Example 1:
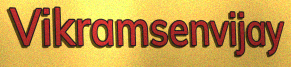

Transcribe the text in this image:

Vikramsenvijay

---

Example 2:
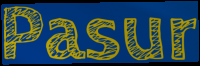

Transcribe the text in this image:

Pasur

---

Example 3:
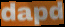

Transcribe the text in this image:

dapd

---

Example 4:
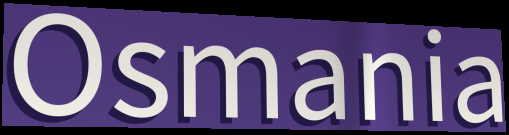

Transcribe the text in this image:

Osmania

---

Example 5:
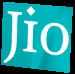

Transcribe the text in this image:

Jio